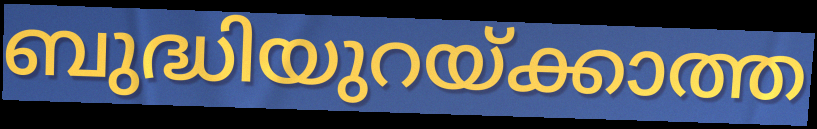
ബുദ്ധിയുറയ്ക്കാത്ത